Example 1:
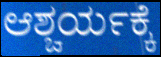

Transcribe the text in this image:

ಆಶ್ಚರ್ಯಕ್ಕೆ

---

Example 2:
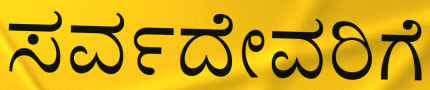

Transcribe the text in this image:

ಸರ್ವದೇವರಿಗೆ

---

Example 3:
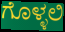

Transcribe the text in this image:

ಗೊಳ್ಳಲಿ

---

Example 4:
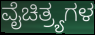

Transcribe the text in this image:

ವೈಚಿತ್ರ್ಯಗಳ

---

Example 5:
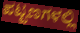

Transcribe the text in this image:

ಪಟ್ಟಣಗಳಲ್ಲಿ